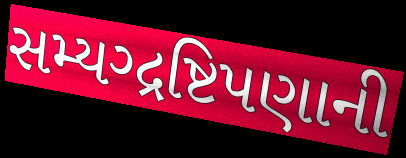
સમ્યગ્દ્રષ્ટિપણાની